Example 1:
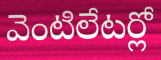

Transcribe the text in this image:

వెంటిలేటర్లో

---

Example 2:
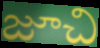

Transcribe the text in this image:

జూచి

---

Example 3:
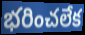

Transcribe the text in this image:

భరించలేక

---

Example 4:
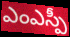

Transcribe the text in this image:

ఎంఎస్పీ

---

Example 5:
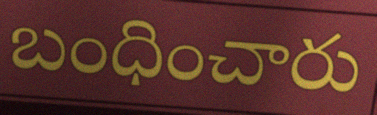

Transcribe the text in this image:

బంధించారు